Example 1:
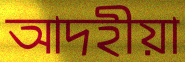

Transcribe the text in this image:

আদহীয়া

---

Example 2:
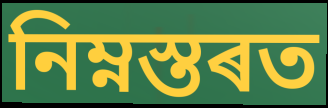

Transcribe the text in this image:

নিম্নস্তৰত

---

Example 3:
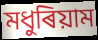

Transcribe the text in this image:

মধুৰিয়াম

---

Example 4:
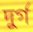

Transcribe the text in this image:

দুৰ্গ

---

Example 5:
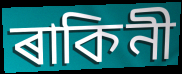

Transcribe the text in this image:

ৰাকিনী